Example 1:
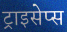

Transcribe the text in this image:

ट्राइसेप्स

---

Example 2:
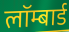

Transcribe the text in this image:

लॉम्बार्ड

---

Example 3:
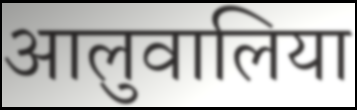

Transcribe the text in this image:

आलुवालिया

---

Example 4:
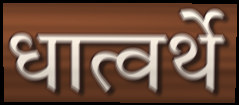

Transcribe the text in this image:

धात्वर्थे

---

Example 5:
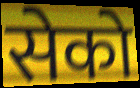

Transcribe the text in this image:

सेको